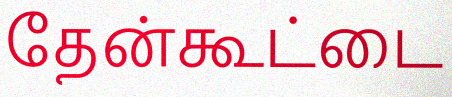
தேன்கூட்டை